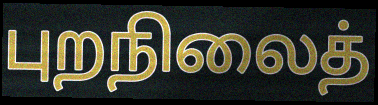
புறநிலைத்